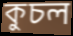
কুচল